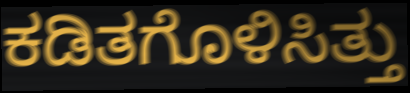
ಕಡಿತಗೊಳಿಸಿತ್ತು